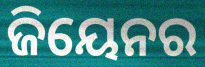
ଜିୟେନର